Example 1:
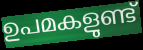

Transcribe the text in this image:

ഉപമകളുണ്ട്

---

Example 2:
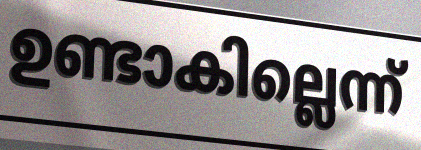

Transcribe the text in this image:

ഉണ്ടാകില്ലെന്ന്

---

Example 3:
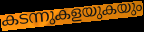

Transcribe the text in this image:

കടന്നുകളയുകയും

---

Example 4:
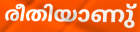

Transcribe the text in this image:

രീതിയാണു്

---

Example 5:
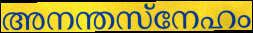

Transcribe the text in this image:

അനന്തസ്നേഹം